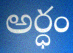
అర్ధం